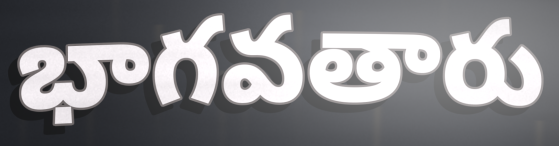
భాగవతారు